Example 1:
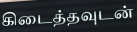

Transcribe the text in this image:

கிடைத்தவுடன்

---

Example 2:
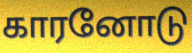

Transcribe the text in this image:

காரனோடு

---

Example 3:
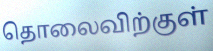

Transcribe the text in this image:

தொலைவிற்குள்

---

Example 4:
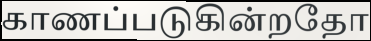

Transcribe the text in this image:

காணப்படுகின்றதோ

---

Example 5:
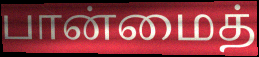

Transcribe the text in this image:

பான்மைத்